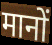
मानों